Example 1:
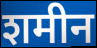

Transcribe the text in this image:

शमीन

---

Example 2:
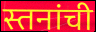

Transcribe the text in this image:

स्तनांची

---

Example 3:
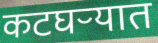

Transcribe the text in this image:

कटघऱ्यात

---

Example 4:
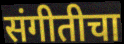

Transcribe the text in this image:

संगीतीचा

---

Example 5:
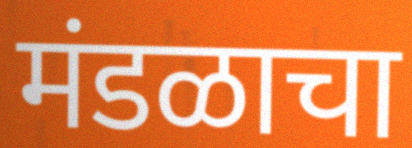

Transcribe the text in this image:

मंडळाचा